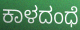
ಕಾಳದಂಧೆ